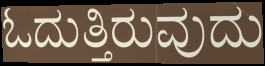
ಓದುತ್ತಿರುವುದು